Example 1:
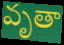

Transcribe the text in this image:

వృతా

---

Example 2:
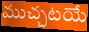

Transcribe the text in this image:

ముచ్చటయే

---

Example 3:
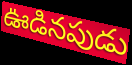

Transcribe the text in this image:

ఊడినపుడు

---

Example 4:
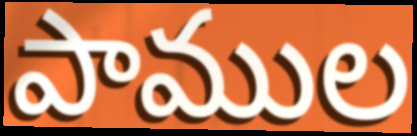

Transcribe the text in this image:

పాముల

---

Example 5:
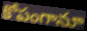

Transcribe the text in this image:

కోపంగానూ